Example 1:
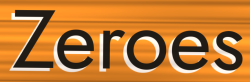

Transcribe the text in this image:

Zeroes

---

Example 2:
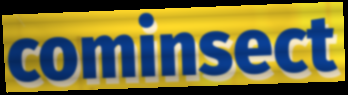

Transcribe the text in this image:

cominsect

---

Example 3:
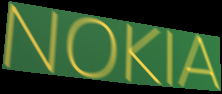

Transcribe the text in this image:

NOKIA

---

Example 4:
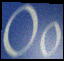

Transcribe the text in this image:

Oo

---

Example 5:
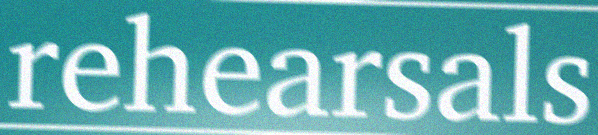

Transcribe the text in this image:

rehearsals